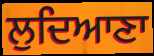
ਲੁਦਿਆਣਾ